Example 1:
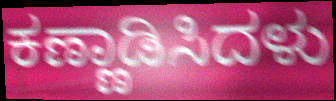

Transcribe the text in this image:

ಕಣ್ಣಾಡಿಸಿದಳು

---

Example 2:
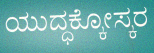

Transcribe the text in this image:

ಯುದ್ಧಕ್ಕೋಸ್ಕರ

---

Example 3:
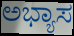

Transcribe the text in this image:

ಅಭ್ಯಾಸ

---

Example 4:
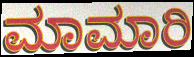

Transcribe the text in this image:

ಮಾಮಾರಿ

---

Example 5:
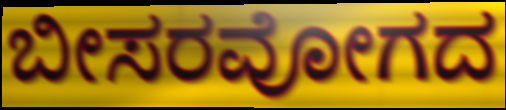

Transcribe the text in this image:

ಬೀಸರವೋಗದ